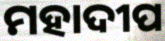
ମହାଦୀପ